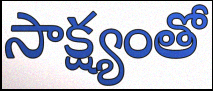
సాక్ష్యంతో